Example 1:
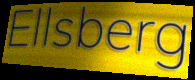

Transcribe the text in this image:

Ellsberg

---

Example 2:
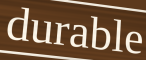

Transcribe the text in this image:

durable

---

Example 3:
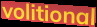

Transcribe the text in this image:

volitional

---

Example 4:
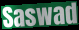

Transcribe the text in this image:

Saswad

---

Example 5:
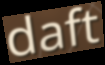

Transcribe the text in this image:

daft